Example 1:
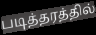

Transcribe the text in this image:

படித்தரத்தில்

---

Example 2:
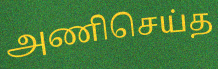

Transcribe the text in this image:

அணிசெய்த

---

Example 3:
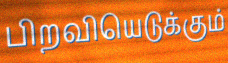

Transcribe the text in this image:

பிறவியெடுக்கும்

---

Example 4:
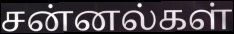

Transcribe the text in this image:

சன்னல்கள்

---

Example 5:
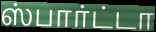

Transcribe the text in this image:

ஸ்பார்ட்டா